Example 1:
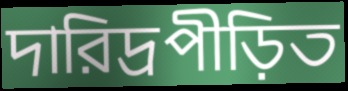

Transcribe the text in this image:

দারিদ্রপীড়িত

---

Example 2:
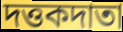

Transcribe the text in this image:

দত্তকদাতা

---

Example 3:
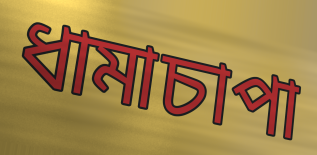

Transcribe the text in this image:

ধামাচাপা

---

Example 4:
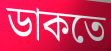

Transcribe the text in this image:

ডাকতে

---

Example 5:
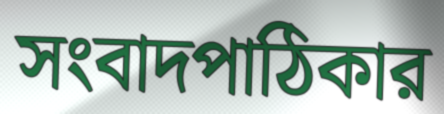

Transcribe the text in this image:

সংবাদপাঠিকার